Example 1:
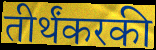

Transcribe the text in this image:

तीर्थंकरकी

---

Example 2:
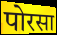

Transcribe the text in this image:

पोरसा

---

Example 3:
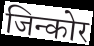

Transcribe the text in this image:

जिन्कोर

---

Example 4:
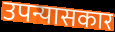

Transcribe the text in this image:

उपन्यासकार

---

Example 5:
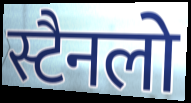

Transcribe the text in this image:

स्टैनलो